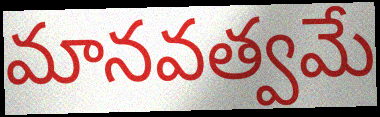
మానవత్వమే